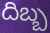
దిబ్బ